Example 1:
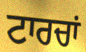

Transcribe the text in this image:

ਟਾਰਚਾਂ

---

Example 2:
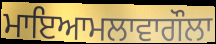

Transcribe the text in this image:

ਮਾਇਆਮਲਾਵਾਗੌਲਾ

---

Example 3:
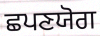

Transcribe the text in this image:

ਛਪਣਯੋਗ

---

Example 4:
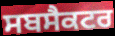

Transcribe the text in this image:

ਸਬਸੈਕਟਰ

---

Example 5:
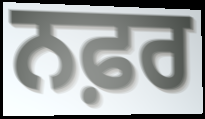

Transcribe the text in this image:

ਨਫ਼ਰ